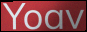
Yoav